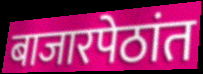
बाजारपेठांत